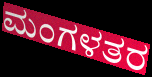
ಮಂಗಳತರ